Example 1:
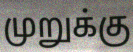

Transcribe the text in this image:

முறுக்கு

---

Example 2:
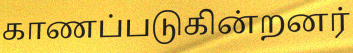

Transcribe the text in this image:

காணப்படுகின்றனர்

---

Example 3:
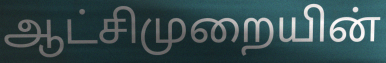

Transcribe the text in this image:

ஆட்சிமுறையின்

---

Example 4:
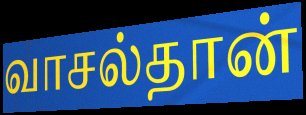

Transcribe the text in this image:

வாசல்தான்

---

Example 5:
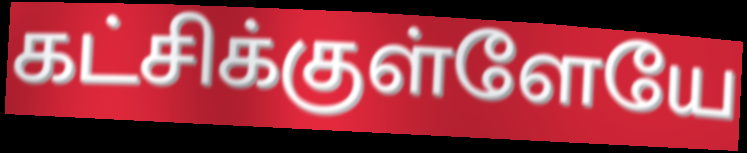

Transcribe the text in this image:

கட்சிக்குள்ளேயே